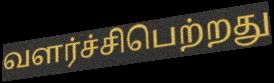
வளர்ச்சிபெற்றது